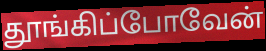
தூங்கிப்போவேன்